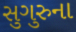
સુગુરુના